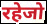
रहेजो